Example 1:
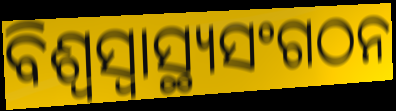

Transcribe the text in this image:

ବିଶ୍ଵସ୍ଵାସ୍ଥ୍ୟସଂଗଠନ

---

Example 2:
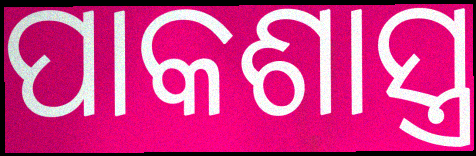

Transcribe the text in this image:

ପାକଶାସ୍ତ୍ର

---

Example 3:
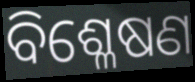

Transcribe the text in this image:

ବିଶ୍ଳେଷଣ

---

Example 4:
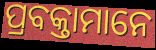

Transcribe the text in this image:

ପ୍ରବକ୍ତାମାନେ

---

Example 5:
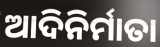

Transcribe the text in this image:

ଆଦିନିର୍ମାତା